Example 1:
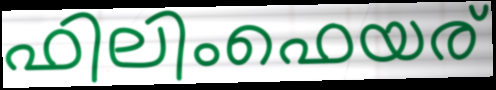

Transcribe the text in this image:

ഫിലിംഫെയര്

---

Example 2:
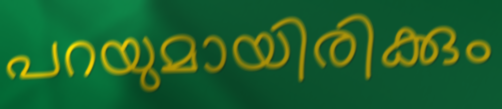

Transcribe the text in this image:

പറയുമായിരിക്കും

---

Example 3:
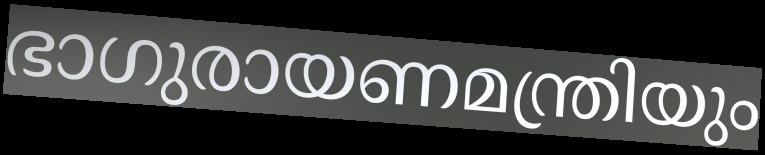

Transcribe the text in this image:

ഭാഗുരായണമന്ത്രിയും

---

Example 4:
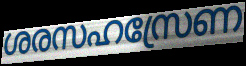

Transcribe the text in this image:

ശരസഹസ്രേണ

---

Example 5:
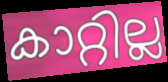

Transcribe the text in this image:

കാറ്റില്ല